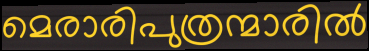
മെരാരിപുത്രന്മാരിൽ